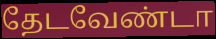
தேடவேண்டா